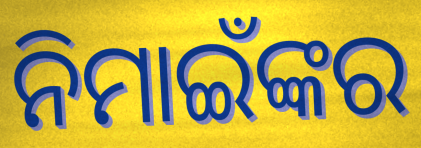
ନିମାଇଁଙ୍କର